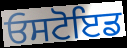
ਓਸਟੋਇਡ